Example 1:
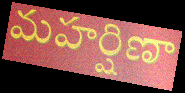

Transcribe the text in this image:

మహర్షిణా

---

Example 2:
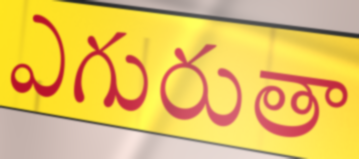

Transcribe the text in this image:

ఎగురుతా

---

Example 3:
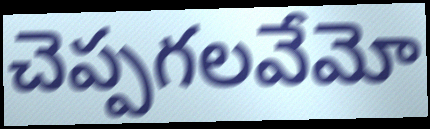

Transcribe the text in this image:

చెప్పగలవేమో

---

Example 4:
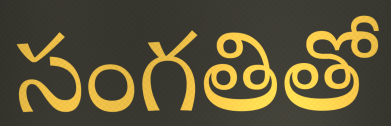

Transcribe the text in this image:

సంగతితో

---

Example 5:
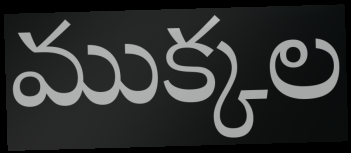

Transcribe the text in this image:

ముక్కల